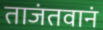
ताजंतवानं